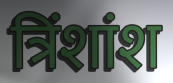
त्रिंशांश